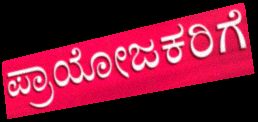
ಪ್ರಾಯೋಜಕರಿಗೆ